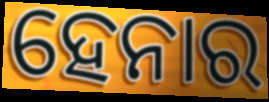
ହେନାର